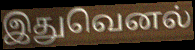
இதுவெனல்